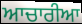
ਆਚਾਰੀਆ